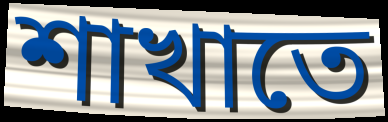
শাখাতে